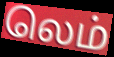
லெம்